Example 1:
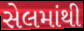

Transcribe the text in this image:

સેલમાંથી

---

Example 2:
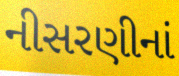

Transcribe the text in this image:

નીસરણીનાં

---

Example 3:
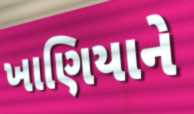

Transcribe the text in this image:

ખાણિયાને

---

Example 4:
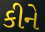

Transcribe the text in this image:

કીને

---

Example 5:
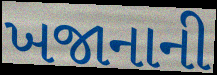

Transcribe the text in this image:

ખજાનાની